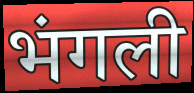
भंगली